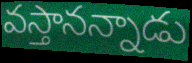
వస్తానన్నాడు